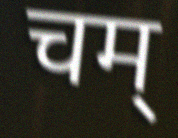
चम्